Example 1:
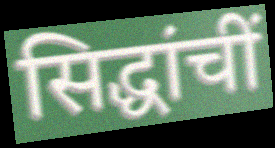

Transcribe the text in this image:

सिद्धांचीं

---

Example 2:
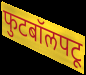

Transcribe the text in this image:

फुटबॉलपटू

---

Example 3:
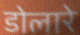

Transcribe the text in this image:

डोलारे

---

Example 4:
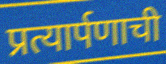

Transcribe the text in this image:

प्रत्यार्पणाची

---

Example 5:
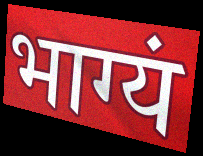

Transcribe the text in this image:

भाग्यं